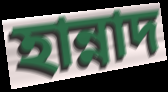
হান্নাদ